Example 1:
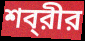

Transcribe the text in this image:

শব্‌রীর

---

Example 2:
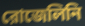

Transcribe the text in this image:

রোজেলিনি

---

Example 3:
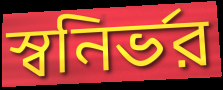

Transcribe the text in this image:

স্বনির্ভর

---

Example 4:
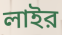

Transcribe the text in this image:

লাইর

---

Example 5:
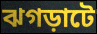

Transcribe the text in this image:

ঝগড়াটে